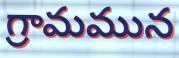
గ్రామమున